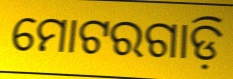
ମୋଟରଗାଡ଼ି